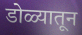
डोळ्यातून